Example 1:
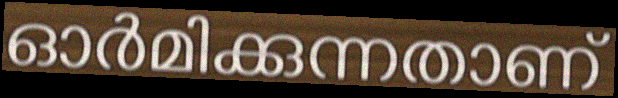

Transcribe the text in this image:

ഓർമിക്കുന്നതാണ്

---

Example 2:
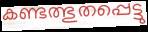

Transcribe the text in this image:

കണ്ടത്ഭുതപ്പെട്ടു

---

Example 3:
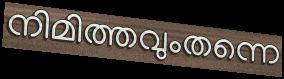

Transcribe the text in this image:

നിമിത്തവുംതന്നെ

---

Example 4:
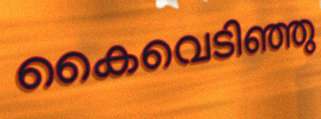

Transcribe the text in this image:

കൈവെടിഞ്ഞു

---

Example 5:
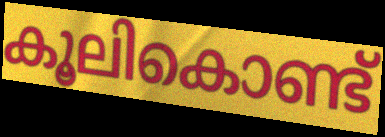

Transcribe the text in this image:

കൂലികൊണ്ട്